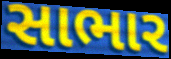
સાભાર